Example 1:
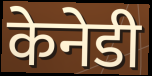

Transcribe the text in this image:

केनेडी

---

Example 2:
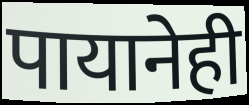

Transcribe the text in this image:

पायानेही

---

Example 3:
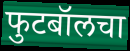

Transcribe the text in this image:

फुटबॉलचा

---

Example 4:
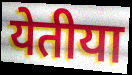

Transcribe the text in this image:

येतीया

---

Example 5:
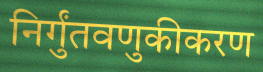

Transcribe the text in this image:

निर्गुंतवणुकीकरण